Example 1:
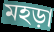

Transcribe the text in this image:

মহড়া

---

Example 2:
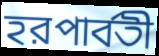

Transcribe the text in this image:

হরপার্বতী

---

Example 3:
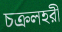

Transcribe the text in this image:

চক্রলহরী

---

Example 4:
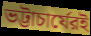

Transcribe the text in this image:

ভট্টাচার্যেরই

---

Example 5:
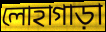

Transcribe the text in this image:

লোহাগাড়া